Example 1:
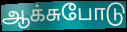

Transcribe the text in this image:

ஆக்சுபோடு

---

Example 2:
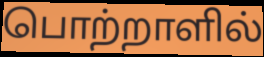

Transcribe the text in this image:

பொற்றாளில்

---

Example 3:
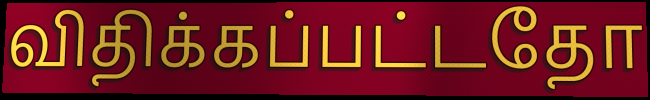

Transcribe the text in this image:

விதிக்கப்பட்டதோ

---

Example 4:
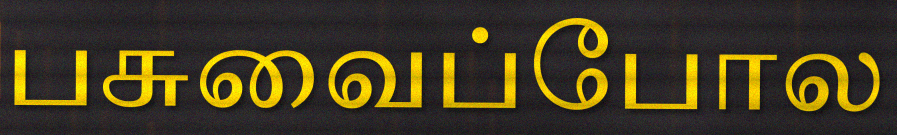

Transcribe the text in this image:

பசுவைப்போல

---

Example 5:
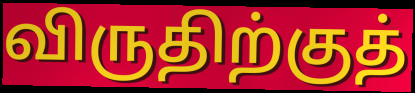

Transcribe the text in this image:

விருதிற்குத்